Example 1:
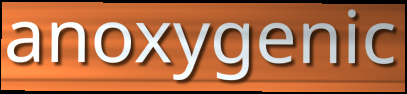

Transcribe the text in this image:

anoxygenic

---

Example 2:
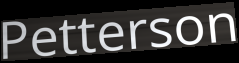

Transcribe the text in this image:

Petterson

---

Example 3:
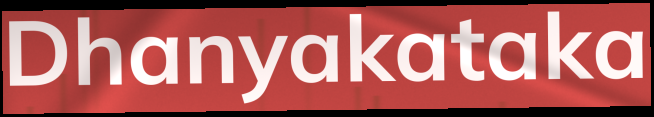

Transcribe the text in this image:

Dhanyakataka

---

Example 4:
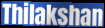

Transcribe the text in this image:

Thilakshan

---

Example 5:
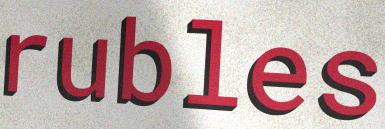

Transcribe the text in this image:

rubles